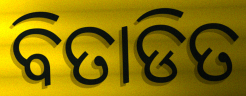
ବିତାଡିତ